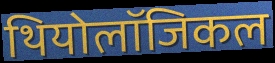
थियोलॉजिकल